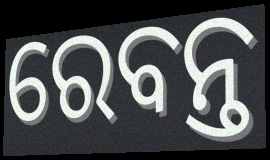
ରେବନ୍ତ